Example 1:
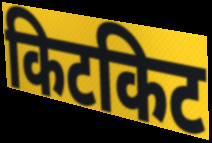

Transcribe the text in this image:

किटकिट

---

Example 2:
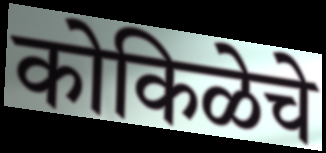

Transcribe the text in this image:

कोकिळेचे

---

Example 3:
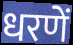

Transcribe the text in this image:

धरणें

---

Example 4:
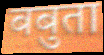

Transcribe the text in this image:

बबुता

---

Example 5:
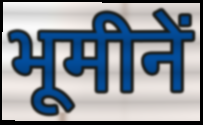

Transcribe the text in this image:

भूमीनें